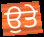
ਉਤੇ